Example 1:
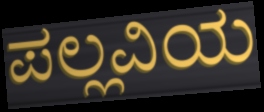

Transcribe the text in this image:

ಪಲ್ಲವಿಯ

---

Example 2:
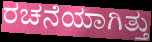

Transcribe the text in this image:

ರಚನೆಯಾಗಿತ್ತು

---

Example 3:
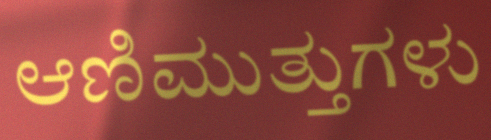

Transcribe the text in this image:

ಆಣಿಮುತ್ತುಗಳು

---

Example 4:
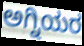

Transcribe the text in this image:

ಅಗ್ನಿಯರ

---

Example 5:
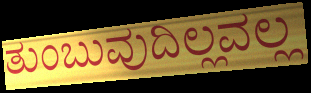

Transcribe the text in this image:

ತುಂಬುವುದಿಲ್ಲವಲ್ಲ